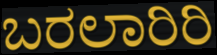
ಬರಲಾರಿರಿ